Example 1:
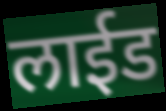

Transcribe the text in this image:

लाईड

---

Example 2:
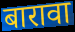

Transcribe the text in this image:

बारावा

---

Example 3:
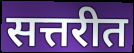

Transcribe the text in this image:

सत्तरीत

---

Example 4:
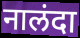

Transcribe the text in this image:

नालंदा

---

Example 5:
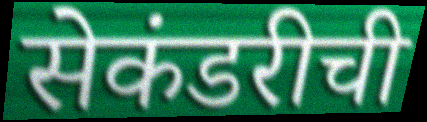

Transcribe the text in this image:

सेकंडरीची